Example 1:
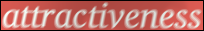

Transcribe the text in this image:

attractiveness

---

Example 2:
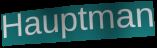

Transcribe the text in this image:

Hauptman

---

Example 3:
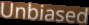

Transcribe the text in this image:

Unbiased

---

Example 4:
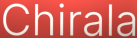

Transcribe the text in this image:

Chirala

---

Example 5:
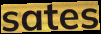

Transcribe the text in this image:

sates